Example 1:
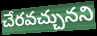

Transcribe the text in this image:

చేరవచ్చునని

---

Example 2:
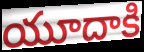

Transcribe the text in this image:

యూదాకి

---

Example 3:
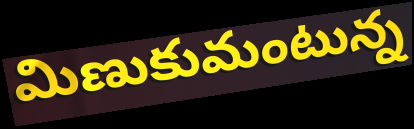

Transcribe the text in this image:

మిణుకుమంటున్న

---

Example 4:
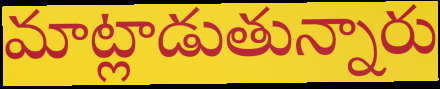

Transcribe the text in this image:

మాట్లాడుతున్నారు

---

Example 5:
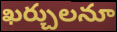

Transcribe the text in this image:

ఖర్చులనూ